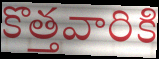
కొత్తవారికి